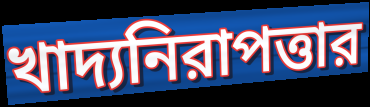
খাদ্যনিরাপত্তার